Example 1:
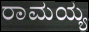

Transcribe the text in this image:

ರಾಮಯ್ಯ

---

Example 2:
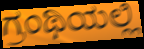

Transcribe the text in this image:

ಗ್ರಂಥಿಯಲ್ಲಿ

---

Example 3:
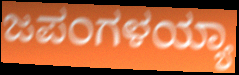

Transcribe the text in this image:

ಜಪಂಗಳಯ್ಯಾ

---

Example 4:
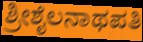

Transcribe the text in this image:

ಶ್ರೀಶೈಲನಾಥಪತಿ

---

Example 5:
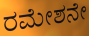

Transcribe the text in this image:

ರಮೇಶನೇ